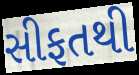
સીફતથી